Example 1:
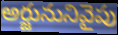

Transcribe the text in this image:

అర్జునునివైపు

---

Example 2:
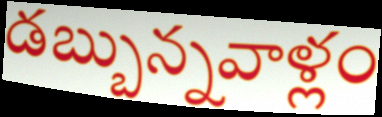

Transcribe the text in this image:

డబ్బున్నవాళ్లం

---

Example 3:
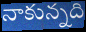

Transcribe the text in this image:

నాకున్నది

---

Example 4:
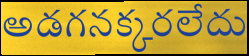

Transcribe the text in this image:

అడగనక్కరలేదు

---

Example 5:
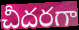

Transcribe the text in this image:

చీదరగా